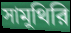
সামুথিরি